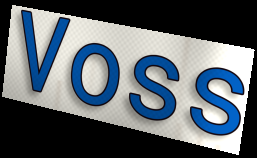
Voss